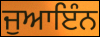
ਜੁਆਇੰਨ